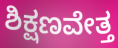
ಶಿಕ್ಷಣವೇತ್ತ